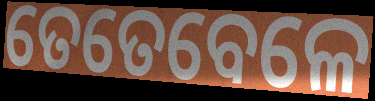
ତେତେବେଳେ